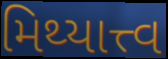
મિથ્યાત્ત્વ